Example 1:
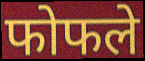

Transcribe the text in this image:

फोफले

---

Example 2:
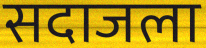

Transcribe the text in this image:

सदाजला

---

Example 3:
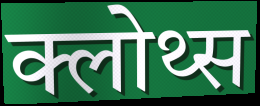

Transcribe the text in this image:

क्लोथ्स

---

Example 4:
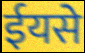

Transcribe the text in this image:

ईयसे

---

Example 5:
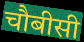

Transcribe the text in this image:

चौबीसी